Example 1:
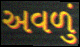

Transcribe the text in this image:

અવળું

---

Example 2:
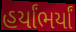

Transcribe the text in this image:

હર્યાંભર્યાં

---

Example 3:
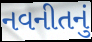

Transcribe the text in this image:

નવનીતનું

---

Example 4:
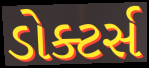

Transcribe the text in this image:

ડોક્ટર્સ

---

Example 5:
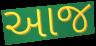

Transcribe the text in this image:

આજ